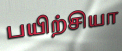
பயிற்சியா